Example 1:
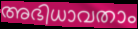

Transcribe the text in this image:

അഭിധാവതാം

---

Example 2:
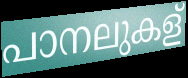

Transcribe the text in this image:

പാനലുകള്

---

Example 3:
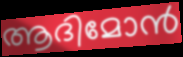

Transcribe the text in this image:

ആദിമോൻ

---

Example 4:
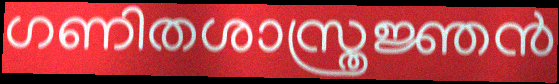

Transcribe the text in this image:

ഗണിതശാസ്ത്രജ്ഞൻ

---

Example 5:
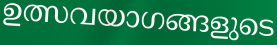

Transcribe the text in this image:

ഉത്സവയാഗങ്ങളുടെ